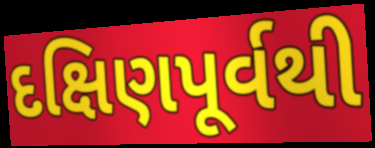
દક્ષિણપૂર્વથી